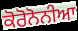
ਕੋਰੋਨੋਨੀਆ